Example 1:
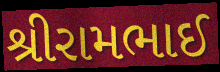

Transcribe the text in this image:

શ્રીરામભાઈ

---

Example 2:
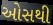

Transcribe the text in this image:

ઓસથી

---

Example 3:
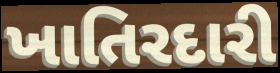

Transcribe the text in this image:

ખાતિરદારી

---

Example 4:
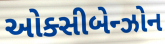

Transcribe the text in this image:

ઓક્સીબેન્ઝોન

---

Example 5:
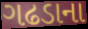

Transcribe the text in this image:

ગઢડાના